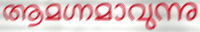
ആമഗ്നമാവുന്നു